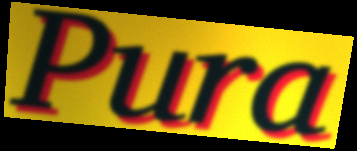
Pura